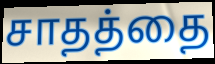
சாதத்தை